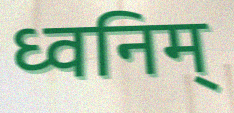
ध्वनिम्